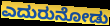
ಎದುರುನೋಡು